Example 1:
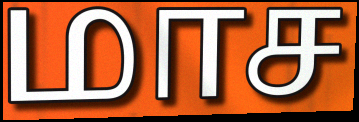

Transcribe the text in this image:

மாச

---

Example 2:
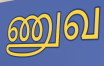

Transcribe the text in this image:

ணுவ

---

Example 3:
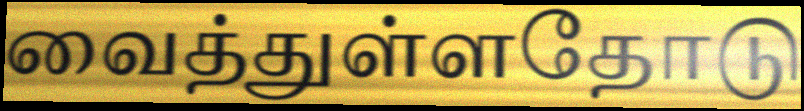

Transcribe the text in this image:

வைத்துள்ளதோடு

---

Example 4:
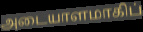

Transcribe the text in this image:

அடையாளமாகிப்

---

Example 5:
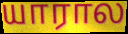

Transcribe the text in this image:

யாரால